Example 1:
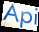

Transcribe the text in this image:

Api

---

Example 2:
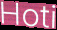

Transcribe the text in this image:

Hoti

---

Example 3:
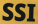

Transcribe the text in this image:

SSI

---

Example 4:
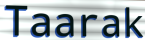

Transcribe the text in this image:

Taarak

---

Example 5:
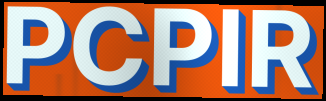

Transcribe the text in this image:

PCPIR